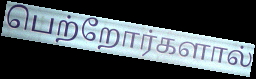
பெற்றோர்களால்